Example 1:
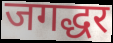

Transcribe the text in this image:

जगद्धर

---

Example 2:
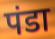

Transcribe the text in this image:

पंडा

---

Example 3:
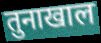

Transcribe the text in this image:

तुनाखाल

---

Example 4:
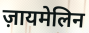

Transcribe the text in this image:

ज़ायमेलिन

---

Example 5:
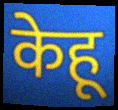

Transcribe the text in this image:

केहू